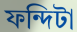
ফন্দিটা